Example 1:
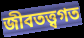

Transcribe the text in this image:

জীবতত্ত্বগত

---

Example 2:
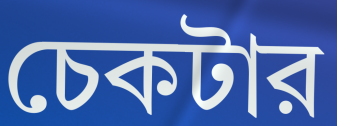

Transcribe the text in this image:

চেকটার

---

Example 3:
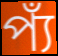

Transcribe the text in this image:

প্যঁ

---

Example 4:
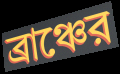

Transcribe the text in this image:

ব্রাঞ্চের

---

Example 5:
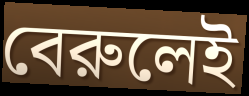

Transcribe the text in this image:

বেরুলেই